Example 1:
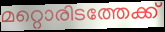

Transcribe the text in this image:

മറ്റൊരിടത്തേക്ക്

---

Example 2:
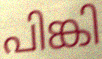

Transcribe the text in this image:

പിങ്കി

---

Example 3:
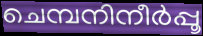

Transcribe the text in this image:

ചെമ്പനിനീർപ്പൂ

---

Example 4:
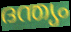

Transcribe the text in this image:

ദന്ത്യം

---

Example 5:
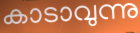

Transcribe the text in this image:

കാടാവുന്നു